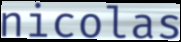
nicolas